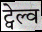
ट्वेल्व